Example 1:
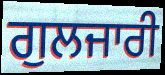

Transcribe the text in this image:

ਗੁਲਜਾਰੀ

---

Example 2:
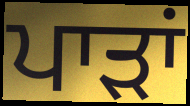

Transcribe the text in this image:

ਪਾੜਾਂ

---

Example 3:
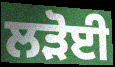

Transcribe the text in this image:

ਲੜੋਈ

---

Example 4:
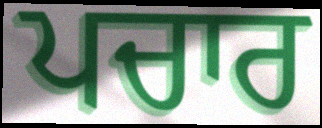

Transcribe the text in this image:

ਪਚਾਰ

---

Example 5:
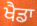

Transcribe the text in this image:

ਖੈਡਾ